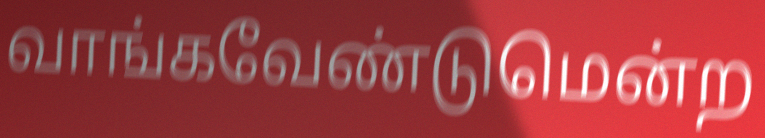
வாங்கவேண்டுமென்ற